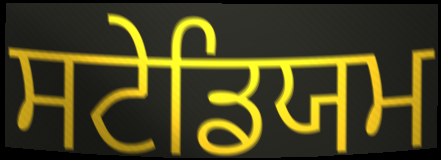
ਸਟੇਡਿਯਮ